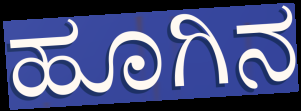
ಹೂಗಿನ